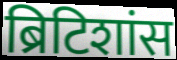
ब्रिटिशांस